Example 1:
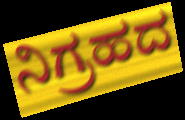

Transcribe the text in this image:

ನಿಗ್ರಹದ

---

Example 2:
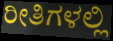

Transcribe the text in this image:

ರೀತಿಗಳಲ್ಲಿ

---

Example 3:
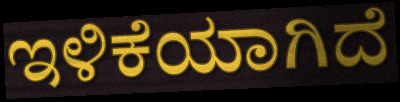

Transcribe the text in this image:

ಇಳಿಕೆಯಾಗಿದೆ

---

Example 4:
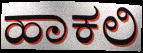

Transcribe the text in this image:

ಹಾಕಲಿ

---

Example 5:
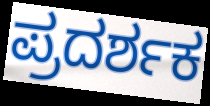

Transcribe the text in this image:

ಪ್ರದರ್ಶಕ